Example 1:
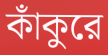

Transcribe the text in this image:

কাঁকুরে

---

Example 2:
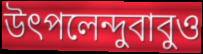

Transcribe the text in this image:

উৎপলেন্দুবাবুও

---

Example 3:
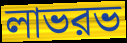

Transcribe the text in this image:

লাভরভ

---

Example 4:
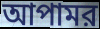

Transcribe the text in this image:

আপামর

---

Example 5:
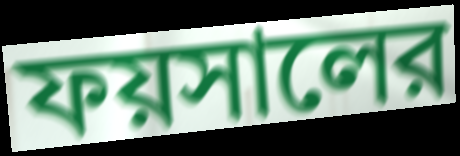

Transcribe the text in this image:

ফয়সালের